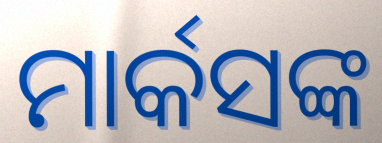
ମାର୍କସଙ୍କ